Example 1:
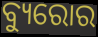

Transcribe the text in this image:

ବ୍ୟୁରୋର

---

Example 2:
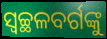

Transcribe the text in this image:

ସ୍ବଚ୍ଛଳବର୍ଗଙ୍କୁ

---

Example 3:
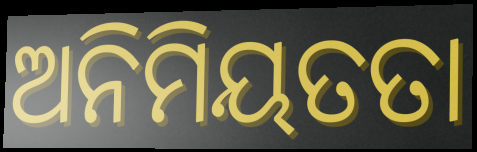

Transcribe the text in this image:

ଅନିମିୟତତା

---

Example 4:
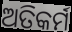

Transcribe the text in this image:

ଅତିକର୍ମ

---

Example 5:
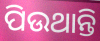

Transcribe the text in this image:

ପିଉଥାନ୍ତି